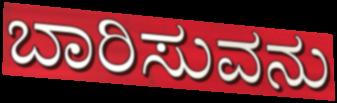
ಬಾರಿಸುವನು